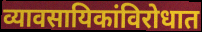
व्यावसायिकांविरोधात